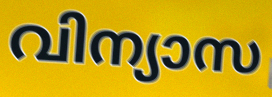
വിന്യാസ